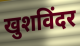
खुशविंदर